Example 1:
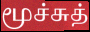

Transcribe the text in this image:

மூச்சுத்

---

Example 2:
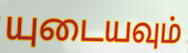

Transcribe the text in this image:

யுடையவும்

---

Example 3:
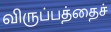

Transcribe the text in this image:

விருப்பத்தைச்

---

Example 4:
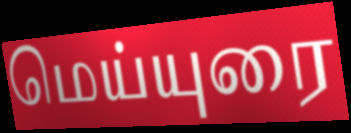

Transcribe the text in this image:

மெய்யுரை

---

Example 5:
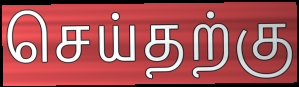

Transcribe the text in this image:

செய்தற்கு